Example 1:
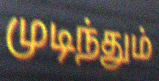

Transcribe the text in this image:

முடிந்தும்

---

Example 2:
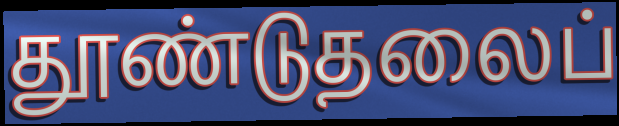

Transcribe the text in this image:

தூண்டுதலைப்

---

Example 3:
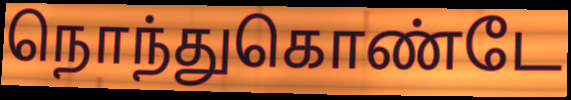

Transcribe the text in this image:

நொந்துகொண்டே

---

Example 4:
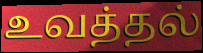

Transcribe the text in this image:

உவத்தல்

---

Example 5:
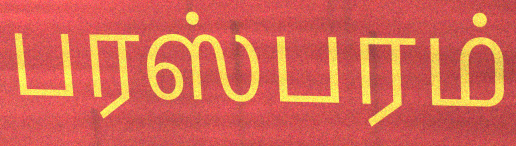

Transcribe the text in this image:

பரஸ்பரம்